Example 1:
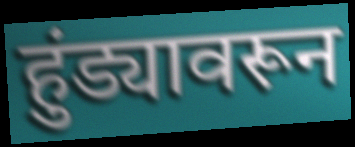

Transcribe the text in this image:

हुंड्यावरून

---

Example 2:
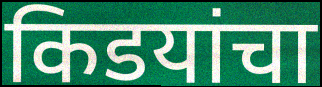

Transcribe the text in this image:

किडयांचा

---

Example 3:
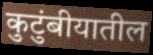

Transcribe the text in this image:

कुटुंबीयातील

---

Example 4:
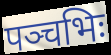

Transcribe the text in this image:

पञ्चभिः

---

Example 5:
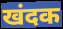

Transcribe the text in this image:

खंदक